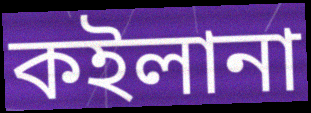
কইলানা